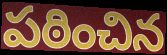
పఠించిన